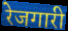
रेजगारी